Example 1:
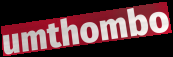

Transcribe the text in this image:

umthombo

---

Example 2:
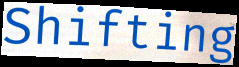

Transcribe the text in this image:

Shifting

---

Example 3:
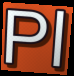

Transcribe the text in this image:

Pl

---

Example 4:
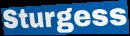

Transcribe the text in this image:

Sturgess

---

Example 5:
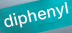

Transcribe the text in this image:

diphenyl